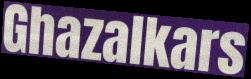
Ghazalkars